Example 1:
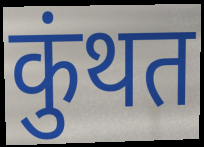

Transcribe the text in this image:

कुंथत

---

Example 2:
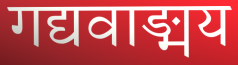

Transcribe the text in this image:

गद्यवाङ्मय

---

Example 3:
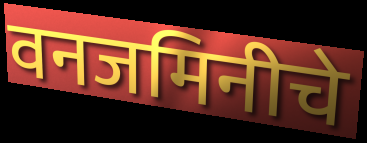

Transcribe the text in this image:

वनजमिनीचे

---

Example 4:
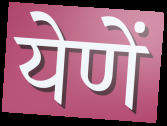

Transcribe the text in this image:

येणें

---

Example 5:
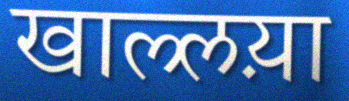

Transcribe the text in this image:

खाल्लय़ा